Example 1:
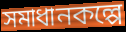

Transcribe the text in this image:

সমাধানকল্পে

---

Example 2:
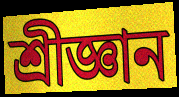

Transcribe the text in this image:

শ্ৰীজ্ঞান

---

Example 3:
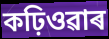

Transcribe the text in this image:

কঢ়িওৱাৰ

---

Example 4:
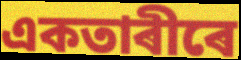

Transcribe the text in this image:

একতাৰীৰে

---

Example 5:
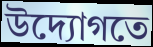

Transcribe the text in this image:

উদ্যোগতে